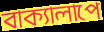
বাক্যালাপে